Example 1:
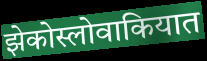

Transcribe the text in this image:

झेकोस्लोवाकियात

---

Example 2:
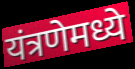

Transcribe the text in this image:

यंत्रणेमध्ये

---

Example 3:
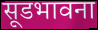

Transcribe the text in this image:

सूडभावना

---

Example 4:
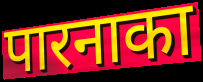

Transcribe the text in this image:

पारनाका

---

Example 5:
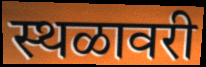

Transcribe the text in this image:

स्थळावरी